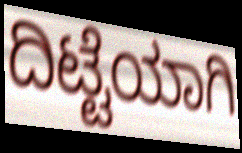
ದಿಟ್ಟೆಯಾಗಿ